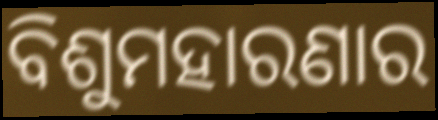
ବିଶୁମହାରଣାର